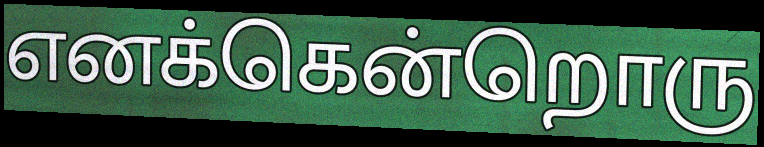
எனக்கென்றொரு